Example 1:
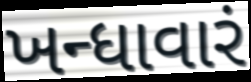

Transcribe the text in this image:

ખન્ધાવારં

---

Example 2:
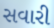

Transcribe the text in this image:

સવારી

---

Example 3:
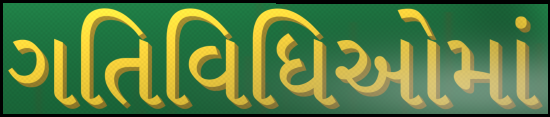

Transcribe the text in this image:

ગતિવિધિઓમાં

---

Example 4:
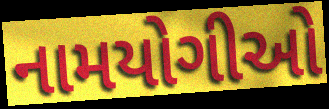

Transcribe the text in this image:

નામયોગીઓ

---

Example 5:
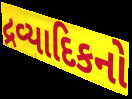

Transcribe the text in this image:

દ્રવ્યાદિકનો